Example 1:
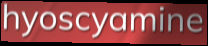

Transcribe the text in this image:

hyoscyamine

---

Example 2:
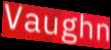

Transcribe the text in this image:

Vaughn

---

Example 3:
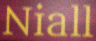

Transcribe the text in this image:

Niall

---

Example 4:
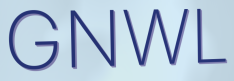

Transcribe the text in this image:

GNWL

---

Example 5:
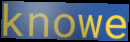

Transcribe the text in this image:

knowe